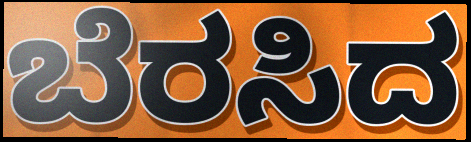
ಬೆರಸಿದ